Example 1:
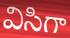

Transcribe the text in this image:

విసిగా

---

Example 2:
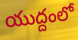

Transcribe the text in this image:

యుద్దంలో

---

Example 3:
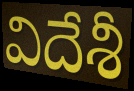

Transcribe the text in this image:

విదేశీ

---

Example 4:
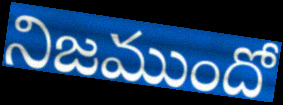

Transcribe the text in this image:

నిజముందో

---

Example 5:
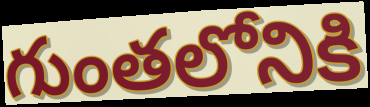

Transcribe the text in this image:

గుంతలోనికి